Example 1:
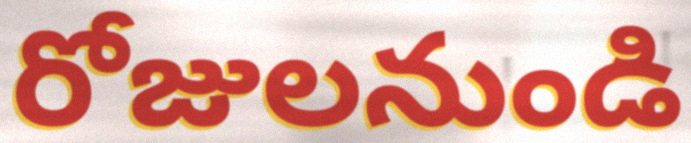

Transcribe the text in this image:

రోజులనుండి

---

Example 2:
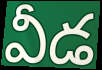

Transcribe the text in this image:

వీడ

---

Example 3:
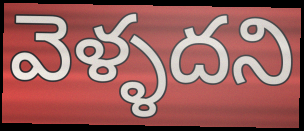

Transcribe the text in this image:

వెళ్ళదని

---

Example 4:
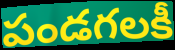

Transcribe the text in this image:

పండగలకీ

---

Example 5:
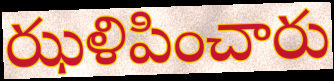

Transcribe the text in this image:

ఝళిపించారు